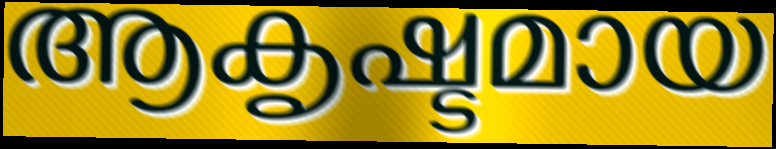
ആകൃഷ്ടമായ